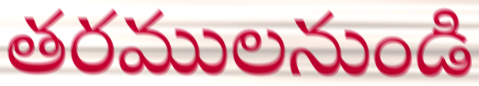
తరములనుండి